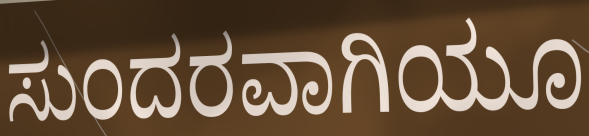
ಸುಂದರವಾಗಿಯೂ